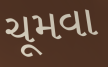
ચૂમવા